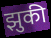
झुकी